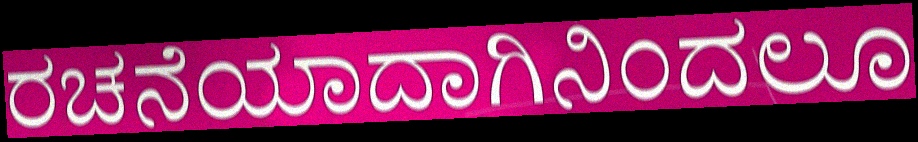
ರಚನೆಯಾದಾಗಿನಿಂದಲೂ